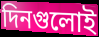
দিনগুলোই